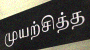
முயற்சித்த